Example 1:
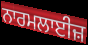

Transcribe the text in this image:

ਨਾਰਮਲਾਈਜ਼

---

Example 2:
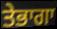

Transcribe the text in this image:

ਤੇਭਾਗਾ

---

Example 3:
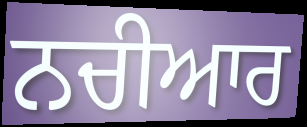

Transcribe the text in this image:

ਨਚੀਆਰ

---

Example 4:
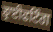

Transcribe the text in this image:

ਡ੍ਰਾਈਫਟਿੰਗ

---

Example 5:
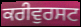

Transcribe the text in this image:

ਕਰੀਵੁਰਸਟ